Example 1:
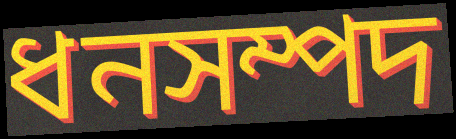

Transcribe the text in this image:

ধনসম্পদ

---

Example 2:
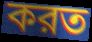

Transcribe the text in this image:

করত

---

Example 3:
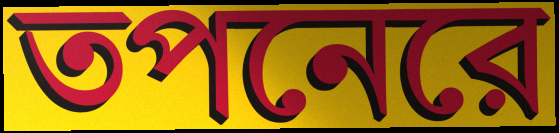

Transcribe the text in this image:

তপনেরে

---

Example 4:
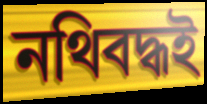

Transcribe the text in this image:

নথিবদ্ধই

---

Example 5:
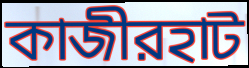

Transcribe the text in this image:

কাজীরহাট